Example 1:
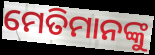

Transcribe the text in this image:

ମେତିମାନଙ୍କୁ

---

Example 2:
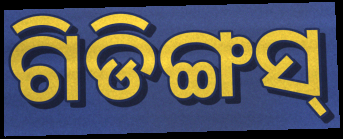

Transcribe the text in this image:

ଗିଡିଙ୍ଗସ୍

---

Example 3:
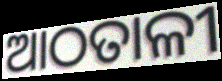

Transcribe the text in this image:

ଆଠତାଳୀ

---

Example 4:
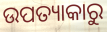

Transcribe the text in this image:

ଉପତ୍ୟାକାରୁ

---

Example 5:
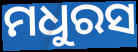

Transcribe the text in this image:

ମଧୁରସ